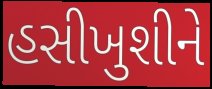
હસીખુશીને